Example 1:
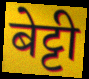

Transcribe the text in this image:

बेट्टी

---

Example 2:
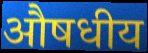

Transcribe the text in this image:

औषधीय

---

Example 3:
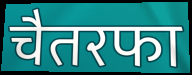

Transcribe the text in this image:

चैतरफा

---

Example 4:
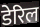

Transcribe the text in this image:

डेरिल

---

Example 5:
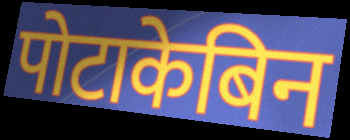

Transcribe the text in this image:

पोटाकेबिन